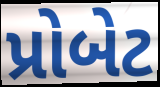
પ્રોબેટ